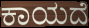
ಕಾಯದೆ